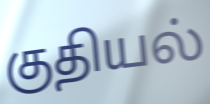
குதியல்